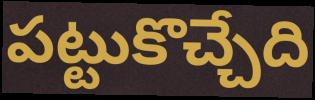
పట్టుకొచ్చేది